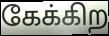
கேக்கிற